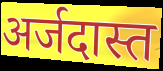
अर्जदास्त